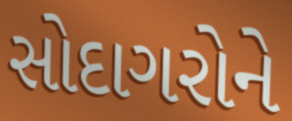
સોદાગરોને